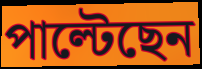
পাল্টেছেন